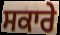
ਸਕਾਰੇ